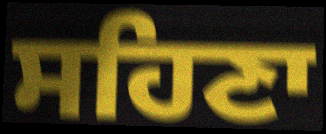
ਸਹਿਣਾ